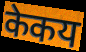
केकय